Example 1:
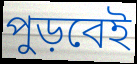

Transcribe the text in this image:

পুড়বেই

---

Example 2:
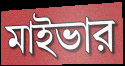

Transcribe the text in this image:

মাইভার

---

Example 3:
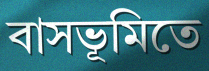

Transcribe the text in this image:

বাসভূমিতে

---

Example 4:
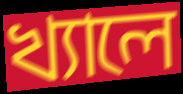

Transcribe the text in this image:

খ্যালে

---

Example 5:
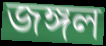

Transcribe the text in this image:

জঙ্গল